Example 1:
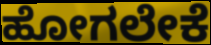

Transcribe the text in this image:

ಹೋಗಲೇಕೆ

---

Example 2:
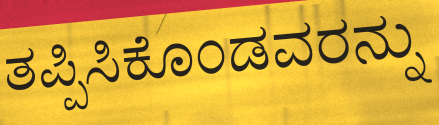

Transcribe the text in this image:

ತಪ್ಪಿಸಿಕೊಂಡವರನ್ನು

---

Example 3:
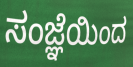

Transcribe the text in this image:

ಸಂಜ್ಞೆಯಿಂದ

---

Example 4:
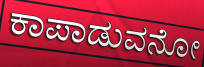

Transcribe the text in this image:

ಕಾಪಾಡುವನೋ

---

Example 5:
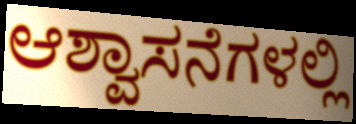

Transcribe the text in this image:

ಆಶ್ವಾಸನೆಗಳಲ್ಲಿ